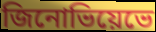
জিনোভিয়েভে